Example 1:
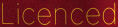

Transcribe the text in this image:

Licenced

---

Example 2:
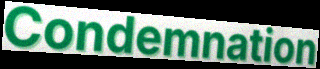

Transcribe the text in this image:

Condemnation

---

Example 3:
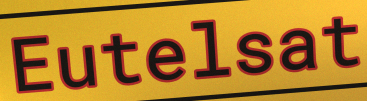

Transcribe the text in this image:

Eutelsat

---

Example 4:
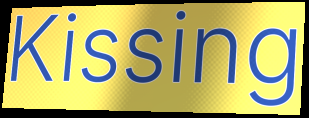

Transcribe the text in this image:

Kissing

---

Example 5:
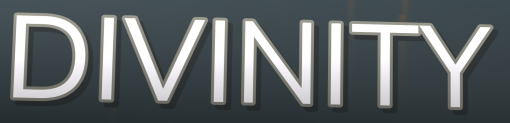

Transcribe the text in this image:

DIVINITY